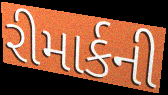
રીમાર્કની